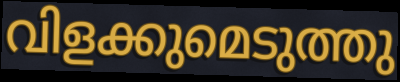
വിളക്കുമെടുത്തു